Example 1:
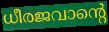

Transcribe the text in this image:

ധീരജവാന്റെ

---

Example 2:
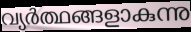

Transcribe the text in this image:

വ്യർത്ഥങ്ങളാകുന്നു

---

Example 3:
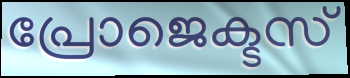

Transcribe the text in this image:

പ്രോജെക്ടസ്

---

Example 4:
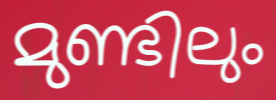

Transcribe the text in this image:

മുണ്ടിലും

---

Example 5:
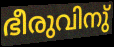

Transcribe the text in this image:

ഭീരുവിനു്